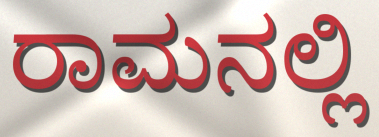
ರಾಮನಲ್ಲಿ